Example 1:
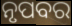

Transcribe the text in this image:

ନୃପବର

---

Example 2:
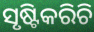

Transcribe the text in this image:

ସୃଷ୍ଟିକରିଚି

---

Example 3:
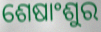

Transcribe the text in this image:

ଶେଷାଂଶୁର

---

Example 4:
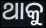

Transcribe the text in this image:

ଥାକୁ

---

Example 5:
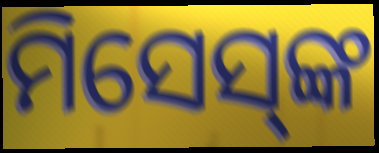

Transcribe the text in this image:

ମିସେସ୍‌ଙ୍କ